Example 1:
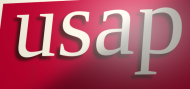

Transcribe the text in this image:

usap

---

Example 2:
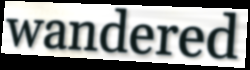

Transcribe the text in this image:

wandered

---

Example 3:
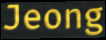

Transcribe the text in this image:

Jeong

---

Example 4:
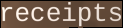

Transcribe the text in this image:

receipts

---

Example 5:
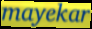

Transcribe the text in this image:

mayekar